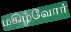
மகிழ்வோர்